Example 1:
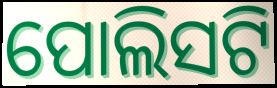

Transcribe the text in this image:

ପୋଲିସଟି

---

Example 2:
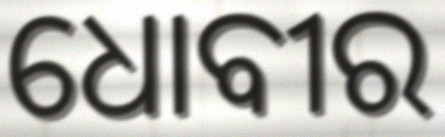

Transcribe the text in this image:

ଧୋବୀର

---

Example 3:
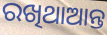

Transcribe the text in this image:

ରଖିଥାଆନ୍ତ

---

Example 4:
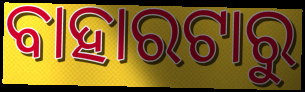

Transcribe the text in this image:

ବାହାରଟାରୁ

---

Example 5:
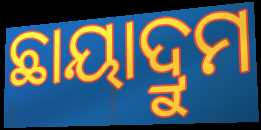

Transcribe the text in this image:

ଛାୟାଦ୍ରୁମ